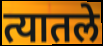
त्यातले